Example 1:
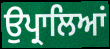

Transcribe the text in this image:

ਉਪ੍ਰਾਲਿਆਂ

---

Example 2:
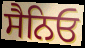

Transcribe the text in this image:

ਸੈਨਿਓ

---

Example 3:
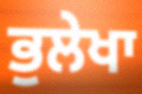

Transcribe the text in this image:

ਭੁਲੇਖਾ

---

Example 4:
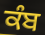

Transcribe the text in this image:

ਕੰਬ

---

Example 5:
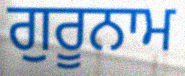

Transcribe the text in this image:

ਗੁਰੂਨਾਮ